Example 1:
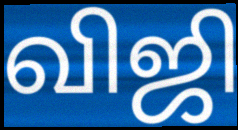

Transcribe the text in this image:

விஜி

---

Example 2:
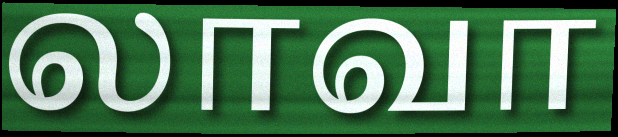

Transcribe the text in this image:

லாவா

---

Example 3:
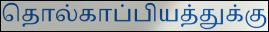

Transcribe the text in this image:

தொல்காப்பியத்துக்கு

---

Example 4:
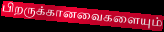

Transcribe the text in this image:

பிறருக்கானவைகளையும்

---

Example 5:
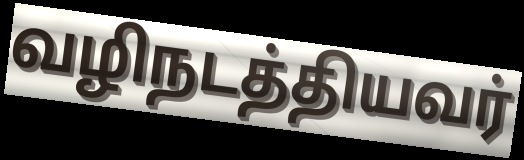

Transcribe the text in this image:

வழிநடத்தியவர்